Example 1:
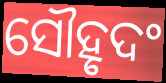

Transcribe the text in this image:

ସୌହୃଦଂ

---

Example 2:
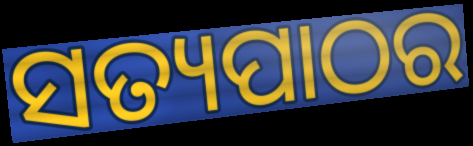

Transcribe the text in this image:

ସତ୍ୟପାଠର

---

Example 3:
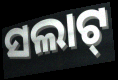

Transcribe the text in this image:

ସଲାଟ୍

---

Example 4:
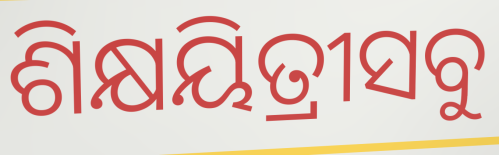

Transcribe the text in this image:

ଶିକ୍ଷୟିତ୍ରୀସବୁ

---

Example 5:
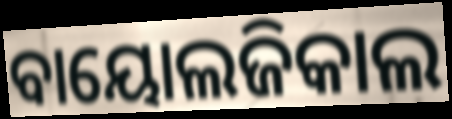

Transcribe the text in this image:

ବାୟୋଲଜିକାଲ